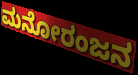
ಮನೋರಂಜನ